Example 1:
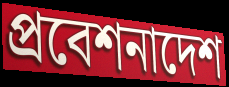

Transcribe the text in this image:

প্রবেশনাদেশ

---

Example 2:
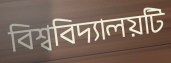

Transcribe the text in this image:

বিশ্ববিদ্যালয়টি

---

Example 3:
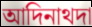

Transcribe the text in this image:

আদিনাথদা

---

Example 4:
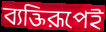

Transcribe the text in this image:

ব্যক্তিরূপেই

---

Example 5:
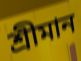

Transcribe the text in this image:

শ্রীমান